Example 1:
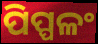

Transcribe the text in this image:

ପିପ୍ପଳଂ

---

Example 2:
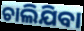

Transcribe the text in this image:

ଚାଲିଯିବା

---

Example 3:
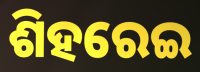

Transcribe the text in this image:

ଶିହରେଇ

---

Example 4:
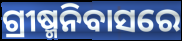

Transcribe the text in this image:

ଗ୍ରୀଷ୍ମନିବାସରେ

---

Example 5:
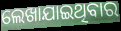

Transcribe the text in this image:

ଲେଖାଯାଇଥିବାର